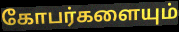
கோபர்களையும்